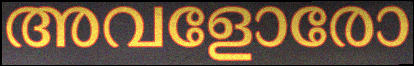
അവളോരോ